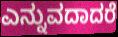
ಎನ್ನುವದಾದರೆ